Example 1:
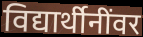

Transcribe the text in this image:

विद्यार्थीनींवर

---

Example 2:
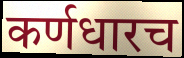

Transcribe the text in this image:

कर्णधारच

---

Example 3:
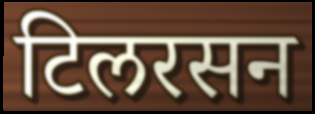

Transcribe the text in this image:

टिलरसन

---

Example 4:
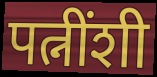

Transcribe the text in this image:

पत्नींशी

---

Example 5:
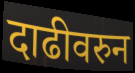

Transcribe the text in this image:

दाढीवरुन